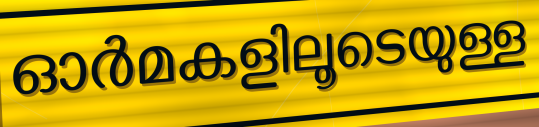
ഓർമകളിലൂടെയുള്ള